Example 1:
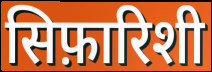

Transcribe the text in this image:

सिफ़ारिशी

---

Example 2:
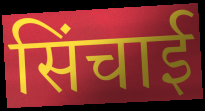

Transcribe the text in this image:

सिंचाई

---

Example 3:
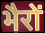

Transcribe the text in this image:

भैरों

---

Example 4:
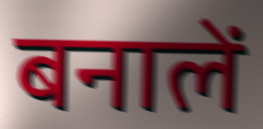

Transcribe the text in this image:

बनालें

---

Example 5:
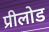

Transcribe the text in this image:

प्रीलोड